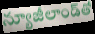
న్యూజీలాండ్‌తో